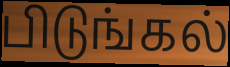
பிடுங்கல்